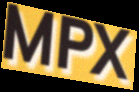
MPX